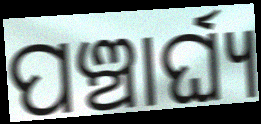
ପଞ୍ଚାର୍ଘ୍ୟ